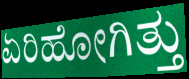
ಏರಿಹೋಗಿತ್ತು